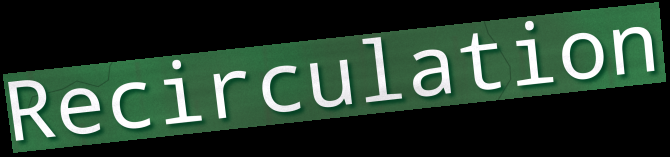
Recirculation